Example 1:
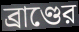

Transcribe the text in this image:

ব্রাণ্ডের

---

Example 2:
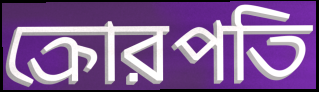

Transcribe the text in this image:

ক্রোরপতি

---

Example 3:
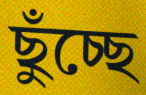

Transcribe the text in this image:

ছুঁচ্ছে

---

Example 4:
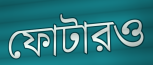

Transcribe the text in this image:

ফোটারও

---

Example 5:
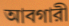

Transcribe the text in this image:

আবগারী